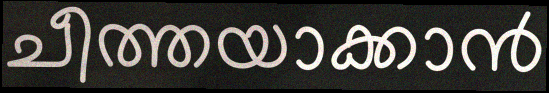
ചീത്തയാക്കാൻ